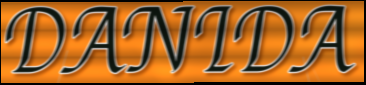
DANIDA